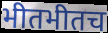
भीतभीतच